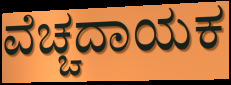
ವೆಚ್ಚದಾಯಕ